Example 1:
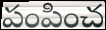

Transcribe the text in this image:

పంపించ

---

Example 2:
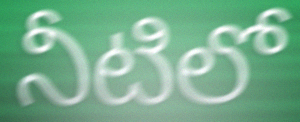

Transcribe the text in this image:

నీటిలో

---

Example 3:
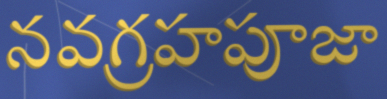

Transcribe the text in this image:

నవగ్రహపూజా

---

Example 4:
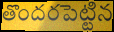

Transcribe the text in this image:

తొందరపెట్టిన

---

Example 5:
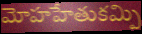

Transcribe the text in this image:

మోహహేతుకమ్పి